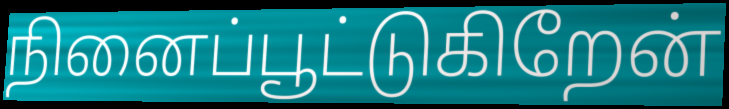
நினைப்பூட்டுகிறேன்